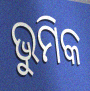
ଭୁମିକ